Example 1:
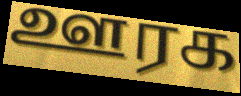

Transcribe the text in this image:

ஊரக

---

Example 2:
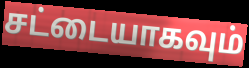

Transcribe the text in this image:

சட்டையாகவும்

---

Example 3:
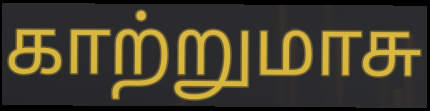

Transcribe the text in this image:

காற்றுமாசு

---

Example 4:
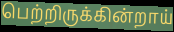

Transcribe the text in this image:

பெற்றிருக்கின்றாய்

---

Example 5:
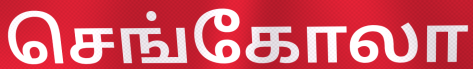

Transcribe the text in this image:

செங்கோலா